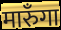
मारुँगा